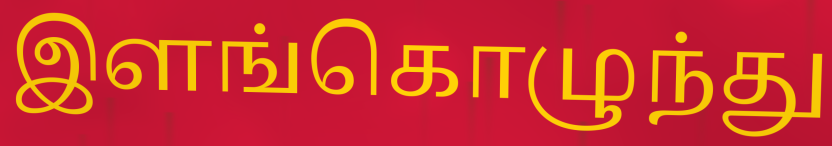
இளங்கொழுந்து